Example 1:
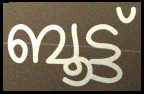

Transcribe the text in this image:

ബൂട്ട്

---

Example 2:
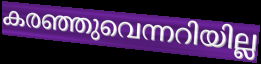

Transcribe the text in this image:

കരഞ്ഞുവെന്നറിയില്ല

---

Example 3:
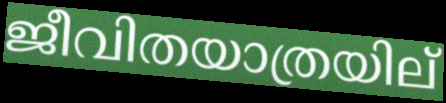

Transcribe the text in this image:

ജീവിതയാത്രയില്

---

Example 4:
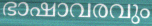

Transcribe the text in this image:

ഭാഷാവരവും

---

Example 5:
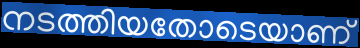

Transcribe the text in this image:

നടത്തിയതോടെയാണ്